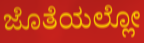
ಜೊತೆಯಲ್ಲೋ